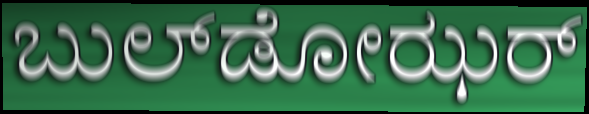
ಬುಲ್‌ಡೋಝರ್